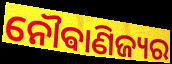
ନୌଵାଣିଜ୍ୟର